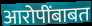
आरोपींबाबत